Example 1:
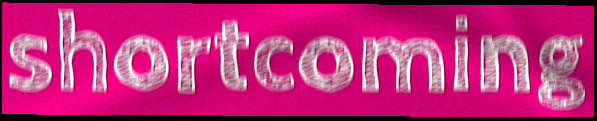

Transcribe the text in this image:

shortcoming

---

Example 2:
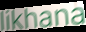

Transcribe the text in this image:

likhana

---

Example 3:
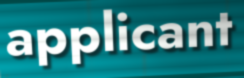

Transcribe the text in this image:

applicant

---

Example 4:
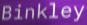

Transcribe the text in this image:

Binkley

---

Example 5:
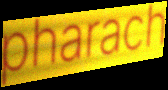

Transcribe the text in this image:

pharach